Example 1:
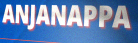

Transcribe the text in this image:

ANJANAPPA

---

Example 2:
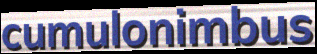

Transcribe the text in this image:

cumulonimbus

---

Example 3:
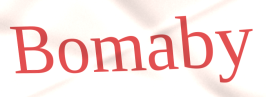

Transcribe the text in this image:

Bomaby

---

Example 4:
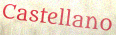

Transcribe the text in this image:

Castellano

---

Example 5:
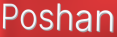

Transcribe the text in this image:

Poshan